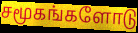
சமூகங்களோடு